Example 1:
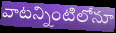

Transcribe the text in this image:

వాటన్నింటిలోనూ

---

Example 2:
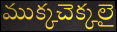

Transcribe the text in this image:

ముక్కచెక్కలై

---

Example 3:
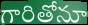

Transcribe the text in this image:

గారితోనూ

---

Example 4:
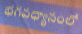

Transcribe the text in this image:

భగవధ్యానంలో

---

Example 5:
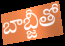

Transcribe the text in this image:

బాబ్జీతో